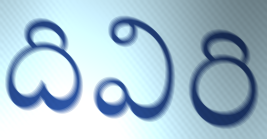
దివిరి